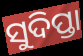
ସୁଦିପ୍ତା